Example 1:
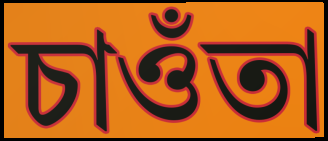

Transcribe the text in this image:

চাওঁতা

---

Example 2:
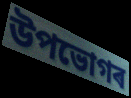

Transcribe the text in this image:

উপভোগৰ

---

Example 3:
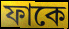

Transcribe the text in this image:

ফাকে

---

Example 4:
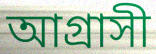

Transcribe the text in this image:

আগ্ৰাসী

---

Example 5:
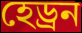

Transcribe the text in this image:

হেড্ৰন